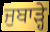
ਜੁਬਾੜ੍ਹੇ